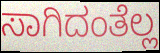
ಸಾಗಿದಂತೆಲ್ಲ